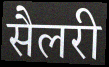
सैलरी